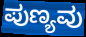
ಪುಣ್ಯವು